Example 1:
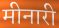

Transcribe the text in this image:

मीनारी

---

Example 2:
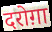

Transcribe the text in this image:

दरोग़ा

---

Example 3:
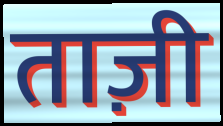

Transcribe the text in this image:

ताज़ी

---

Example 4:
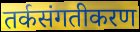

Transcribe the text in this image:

तर्कसंगतीकरण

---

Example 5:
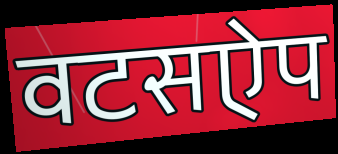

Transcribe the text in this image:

वटसऐप